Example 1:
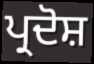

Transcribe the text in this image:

ਪ੍ਰਦੋਸ਼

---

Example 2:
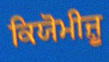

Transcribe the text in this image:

ਕਿਯੋਮੀਜ਼ੂ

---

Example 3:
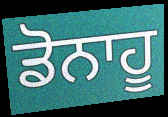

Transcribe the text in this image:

ਡੋਨਾਹੂ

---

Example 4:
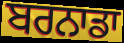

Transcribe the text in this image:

ਬਰਨਾਡਾ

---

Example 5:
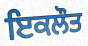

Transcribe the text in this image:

ਇਕਲੌਤ